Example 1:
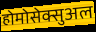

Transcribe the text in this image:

होमोसेक्सुअल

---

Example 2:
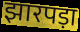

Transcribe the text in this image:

झारपड़ा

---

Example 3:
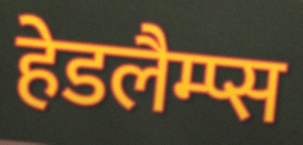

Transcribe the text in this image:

हेडलैम्प्स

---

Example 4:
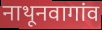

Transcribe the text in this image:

नाथूनवागांव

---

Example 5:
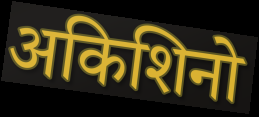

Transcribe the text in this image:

अकिशिनो